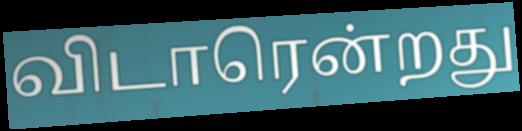
விடாரென்றது